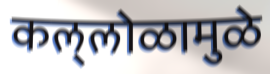
कल्लोळामुळे